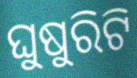
ଘୁଷୁରିଟି